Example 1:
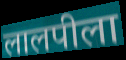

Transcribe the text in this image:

लालपीला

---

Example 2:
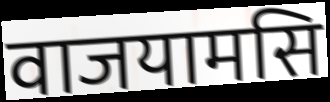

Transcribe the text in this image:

वाजयामसि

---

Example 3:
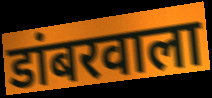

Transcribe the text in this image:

डांबरवाला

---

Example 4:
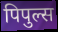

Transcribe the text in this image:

पिपुल्स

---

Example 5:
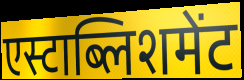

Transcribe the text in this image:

एस्टाब्लिशमेंट